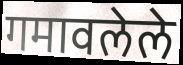
गमावलेले